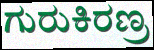
ಗುರುಕಿರಣ್ರ